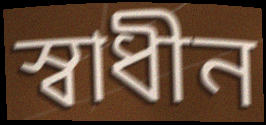
স্বাধীন